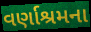
વર્ણાશ્રમના